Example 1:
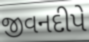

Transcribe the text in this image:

જીવનદીપે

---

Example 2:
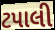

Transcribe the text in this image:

ટપાલી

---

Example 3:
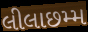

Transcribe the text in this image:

લીલાછમ્મ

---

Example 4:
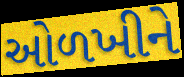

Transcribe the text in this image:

ઓળખીને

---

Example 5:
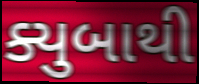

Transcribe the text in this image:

ક્યુબાથી